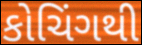
કોચિંગથી